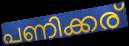
പണിക്കര്